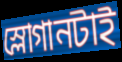
স্লোগানটাই